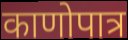
काणोपात्र